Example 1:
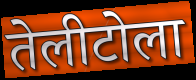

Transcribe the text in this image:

तेलीटोला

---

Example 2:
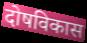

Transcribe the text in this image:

दोषविकास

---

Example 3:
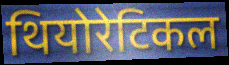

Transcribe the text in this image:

थियोरेटिकल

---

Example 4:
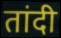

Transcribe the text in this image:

तांदी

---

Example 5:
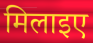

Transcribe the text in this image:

मिलाइए